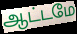
ஆட்டமே